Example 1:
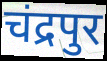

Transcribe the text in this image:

चंद्रपुर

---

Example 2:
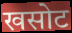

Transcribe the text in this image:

खसोट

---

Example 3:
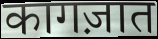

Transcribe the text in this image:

कागज़ात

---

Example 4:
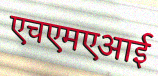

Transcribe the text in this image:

एचएमएआई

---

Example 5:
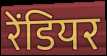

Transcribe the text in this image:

रेंडियर